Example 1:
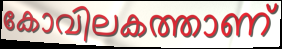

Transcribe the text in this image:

കോവിലകത്താണ്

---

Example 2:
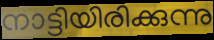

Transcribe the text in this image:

നാട്ടിയിരിക്കുന്നു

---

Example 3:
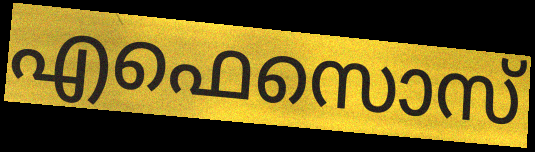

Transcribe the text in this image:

എഫെസൊസ്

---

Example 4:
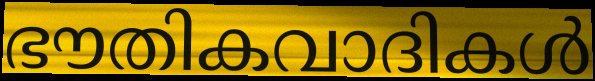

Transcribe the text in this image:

ഭൗതികവാദികൾ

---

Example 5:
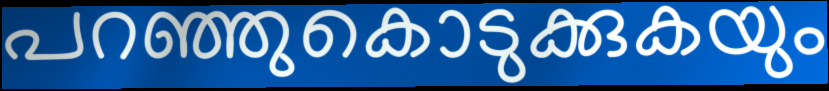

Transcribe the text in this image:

പറഞ്ഞുകൊടുക്കുകയും